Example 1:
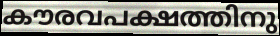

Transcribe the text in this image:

കൗരവപക്ഷത്തിനു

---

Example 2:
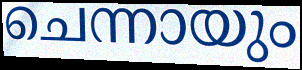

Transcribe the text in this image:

ചെന്നായും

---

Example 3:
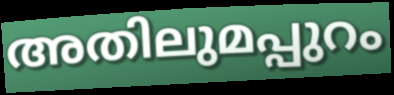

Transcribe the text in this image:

അതിലുമപ്പുറം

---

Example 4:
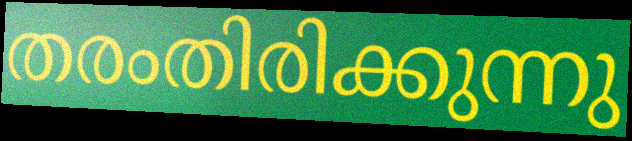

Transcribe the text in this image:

തരംതിരിക്കുന്നു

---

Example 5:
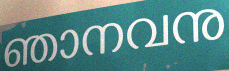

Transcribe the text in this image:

ഞാനവനു